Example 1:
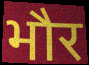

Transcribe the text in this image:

भौर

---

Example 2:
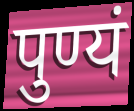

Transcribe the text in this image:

पुण्यं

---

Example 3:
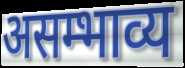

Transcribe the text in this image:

असम्भाव्य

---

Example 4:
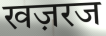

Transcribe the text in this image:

खज़रज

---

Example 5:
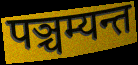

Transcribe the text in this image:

पञ्चम्यन्त